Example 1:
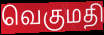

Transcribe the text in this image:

வெகுமதி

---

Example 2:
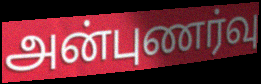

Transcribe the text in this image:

அன்புணர்வு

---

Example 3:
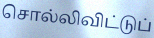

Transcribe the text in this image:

சொல்லிவிட்டுப்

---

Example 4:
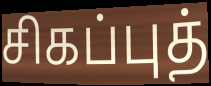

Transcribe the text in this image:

சிகப்புத்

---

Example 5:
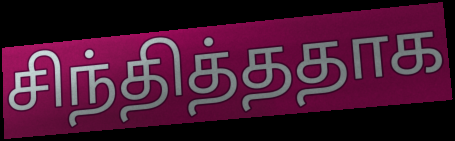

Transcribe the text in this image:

சிந்தித்ததாக